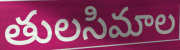
తులసిమాల